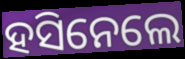
ହସିନେଲେ